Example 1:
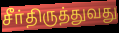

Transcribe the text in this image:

சீர்திருத்துவது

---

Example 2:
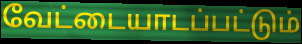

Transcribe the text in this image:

வேட்டையாடப்பட்டும்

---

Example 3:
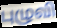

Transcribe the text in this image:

புழுவி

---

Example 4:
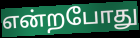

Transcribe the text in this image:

என்றபோது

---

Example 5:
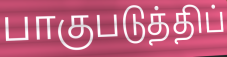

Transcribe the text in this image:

பாகுபடுத்திப்